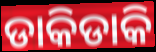
ଡାକିଡାକି